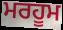
ਮਰਹੂਮ